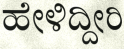
ಹೇಳಿದ್ದೀರಿ